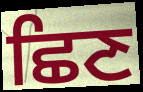
ਛਿਣ